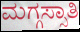
ಮಗ್ಗಸ್ಸಾತಿ